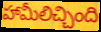
హామీలిచ్చింది